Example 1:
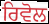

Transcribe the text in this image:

ਰਿਵੋਲ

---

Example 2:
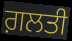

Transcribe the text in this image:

ਗ਼ਲਤੀ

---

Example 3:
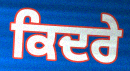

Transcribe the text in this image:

ਕਿਦਰੇ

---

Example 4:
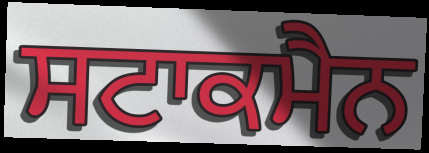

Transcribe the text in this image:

ਸਟਾਕਮੈਨ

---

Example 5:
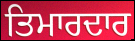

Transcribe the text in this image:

ਤਿਮਾਰਦਾਰ